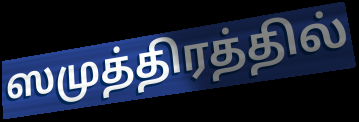
ஸமுத்திரத்தில்